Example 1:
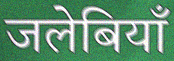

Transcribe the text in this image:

जलेबियाँ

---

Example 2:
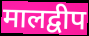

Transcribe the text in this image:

मालद्वीप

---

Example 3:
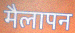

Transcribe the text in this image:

मैलापन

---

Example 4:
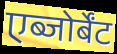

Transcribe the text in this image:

एब्जोर्बेंट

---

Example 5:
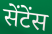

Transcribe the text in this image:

सेंटेंस